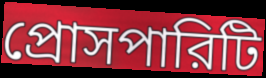
প্রোসপারিটি